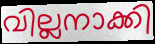
വില്ലനാക്കി